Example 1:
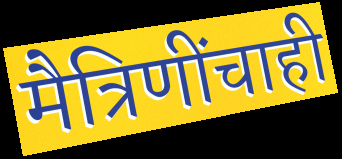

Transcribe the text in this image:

मैत्रिणींचाही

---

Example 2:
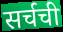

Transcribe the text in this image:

सर्चची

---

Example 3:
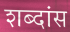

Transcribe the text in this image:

शब्दांस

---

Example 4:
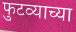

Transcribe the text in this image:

फुटव्याच्या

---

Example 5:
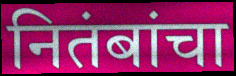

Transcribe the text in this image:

नितंबांचा